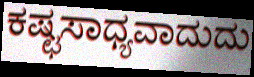
ಕಷ್ಟಸಾಧ್ಯವಾದುದು